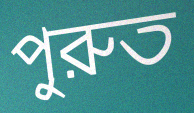
পুরুত